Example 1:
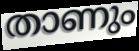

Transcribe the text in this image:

താണും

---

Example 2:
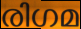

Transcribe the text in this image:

രിഗമ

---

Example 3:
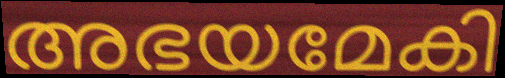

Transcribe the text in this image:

അഭയമേകി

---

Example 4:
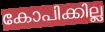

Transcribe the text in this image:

കോപിക്കില്ല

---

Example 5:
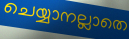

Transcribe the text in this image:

ചെയ്യാനല്ലാതെ